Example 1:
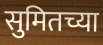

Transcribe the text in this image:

सुमितच्या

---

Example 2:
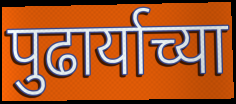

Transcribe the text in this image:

पुढार्याच्या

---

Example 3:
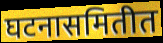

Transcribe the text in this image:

घटनासमितीत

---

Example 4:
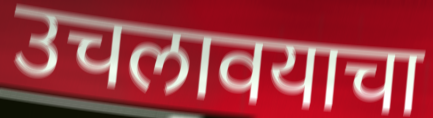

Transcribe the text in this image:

उचलावयाचा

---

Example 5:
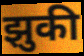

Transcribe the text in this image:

झुकी